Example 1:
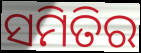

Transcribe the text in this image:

ସମିତିର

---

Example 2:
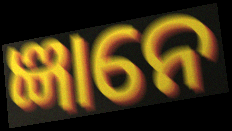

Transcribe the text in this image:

ଜ୍ଞାନେ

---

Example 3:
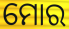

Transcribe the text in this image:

ମୋର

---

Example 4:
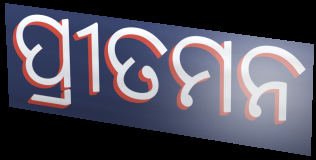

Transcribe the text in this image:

ପ୍ରୀତମନ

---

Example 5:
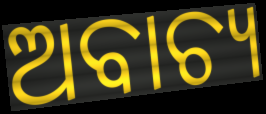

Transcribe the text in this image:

ଅବାଚ୍ୟ